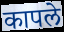
कापले